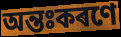
অন্তঃকৰণে